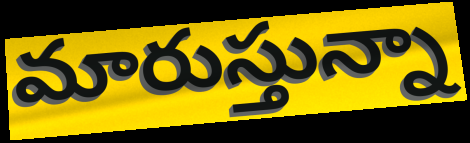
మారుస్తున్నా